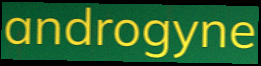
androgyne